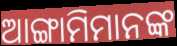
ଆଙ୍ଗାମିମାନଙ୍କ